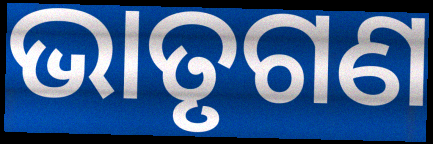
ଭାତୃଗଣ